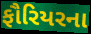
ફૌરિયરના